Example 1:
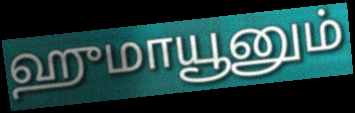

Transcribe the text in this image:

ஹுமாயூனும்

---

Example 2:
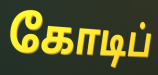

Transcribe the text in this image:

கோடிப்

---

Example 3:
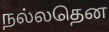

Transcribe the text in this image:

நல்லதென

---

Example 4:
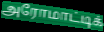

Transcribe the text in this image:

அரோமாட்டிக்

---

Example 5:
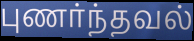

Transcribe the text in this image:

புணர்ந்தவல்